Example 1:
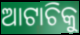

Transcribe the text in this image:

ଆଟାଚିକୁ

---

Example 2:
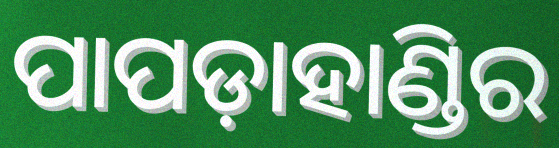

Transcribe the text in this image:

ପାପଡ଼ାହାଣ୍ଡିର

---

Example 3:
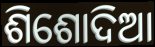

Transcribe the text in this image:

ଶିଶୋଦିଆ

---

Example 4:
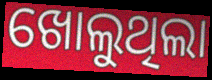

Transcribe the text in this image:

ଖୋଲୁଥିଲା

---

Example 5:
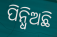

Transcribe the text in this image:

ପିନ୍ଧିଅଛି